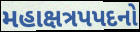
મહાક્ષત્રપપદનો